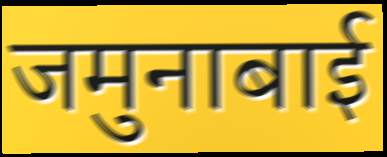
जमुनाबाई